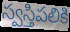
స్వస్తిపలికి